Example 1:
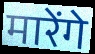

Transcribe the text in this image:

मारेंगे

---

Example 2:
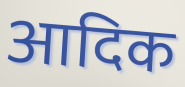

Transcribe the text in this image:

आदिक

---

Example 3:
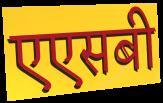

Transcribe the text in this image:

एएसबी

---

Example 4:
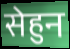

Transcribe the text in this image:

सेहुन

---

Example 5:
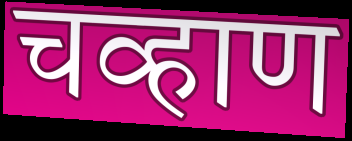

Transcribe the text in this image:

चव्हाण